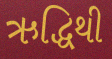
ઋદ્ધિથી